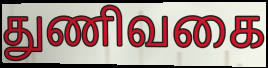
துணிவகை